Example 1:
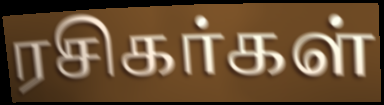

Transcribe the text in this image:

ரசிகர்கள்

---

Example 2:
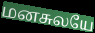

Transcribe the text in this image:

மனசுலயே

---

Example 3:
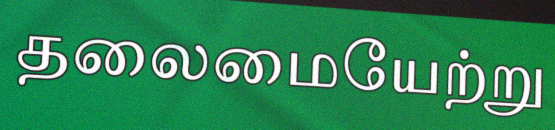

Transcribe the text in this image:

தலைமையேற்று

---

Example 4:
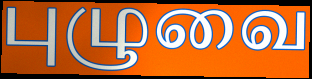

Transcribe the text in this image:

புழுவை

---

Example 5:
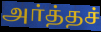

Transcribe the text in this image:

அர்த்தச்